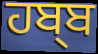
ਹਬ੍ਬ